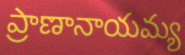
ప్రాణానాయమ్య